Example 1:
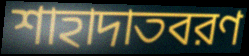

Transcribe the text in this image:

শাহাদাতবরণ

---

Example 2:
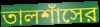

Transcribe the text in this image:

তালশাঁসের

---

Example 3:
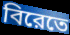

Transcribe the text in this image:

বিরেতে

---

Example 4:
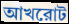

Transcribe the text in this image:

আখরোট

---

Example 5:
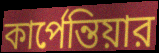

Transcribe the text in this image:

কার্পেন্তিয়ার